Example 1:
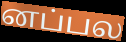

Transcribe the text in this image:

னப்பல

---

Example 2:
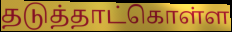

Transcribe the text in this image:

தடுத்தாட்கொள்ள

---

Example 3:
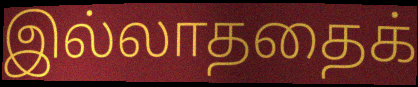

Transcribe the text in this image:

இல்லாததைக்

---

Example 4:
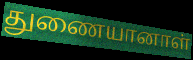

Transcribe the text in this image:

துணையானாள்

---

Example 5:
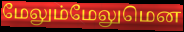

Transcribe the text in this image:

மேலும்மேலுமென